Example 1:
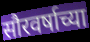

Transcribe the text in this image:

सौरवर्षाच्या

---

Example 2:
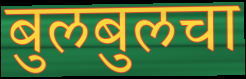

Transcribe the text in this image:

बुलबुलचा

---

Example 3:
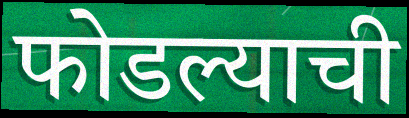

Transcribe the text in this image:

फोडल्याची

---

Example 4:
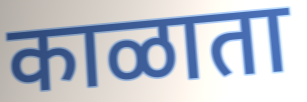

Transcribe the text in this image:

काळाता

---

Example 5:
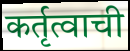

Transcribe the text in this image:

कर्तृत्वाची